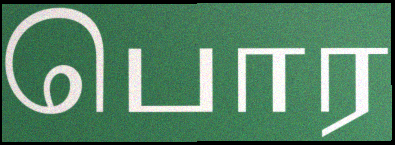
பொர